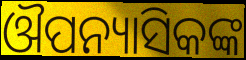
ଔପନ୍ୟାସିକଙ୍କ